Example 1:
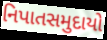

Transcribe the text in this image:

નિપાતસમુદાયો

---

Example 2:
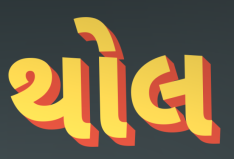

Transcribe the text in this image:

થોલ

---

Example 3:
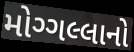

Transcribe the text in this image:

મોગ્ગલ્લાનો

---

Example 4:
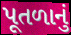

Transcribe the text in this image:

પૂતળાનું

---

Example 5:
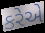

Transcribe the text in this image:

કરેએ